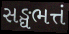
સઙ્ઘભત્તં